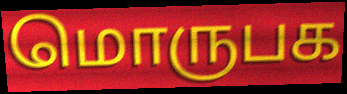
மொருபக